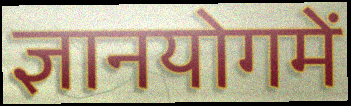
ज्ञानयोगमें